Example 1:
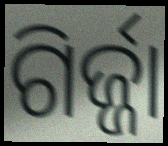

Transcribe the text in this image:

ଗିର୍ଜ୍ଜା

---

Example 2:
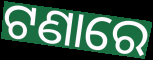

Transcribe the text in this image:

ଟଣାରେ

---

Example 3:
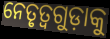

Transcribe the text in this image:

ନେତୃତ୍ୱଗୁଡ଼ାକୁ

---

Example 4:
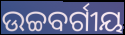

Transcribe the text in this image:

ଉଚ୍ଚବର୍ଗୀୟ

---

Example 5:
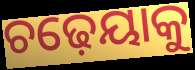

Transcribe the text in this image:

ଚଢ଼େୟାକୁ